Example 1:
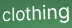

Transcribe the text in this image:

clothing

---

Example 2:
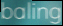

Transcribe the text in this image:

baling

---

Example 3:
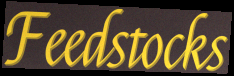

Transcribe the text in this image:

Feedstocks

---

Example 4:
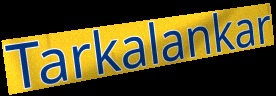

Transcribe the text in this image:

Tarkalankar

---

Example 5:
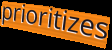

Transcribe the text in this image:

prioritizes